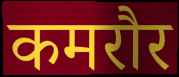
कमरौर